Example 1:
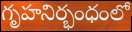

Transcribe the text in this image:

గృహనిర్భంధంలో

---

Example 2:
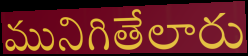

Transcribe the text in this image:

మునిగితేలారు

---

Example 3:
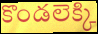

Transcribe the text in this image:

కొండలెక్కి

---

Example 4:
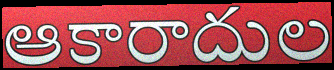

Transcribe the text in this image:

ఆకారాదుల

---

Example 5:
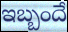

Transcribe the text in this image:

ఇబ్బందే